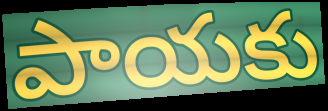
పాయకు